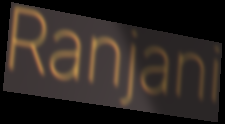
Ranjani